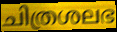
ചിത്രശലഭ